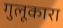
गुलूकारा